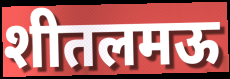
शीतलमऊ